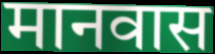
मानवास